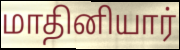
மாதினியார்